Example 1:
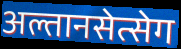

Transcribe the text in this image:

अल्तानसेत्सेग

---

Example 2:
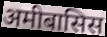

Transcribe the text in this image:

अमीबासिस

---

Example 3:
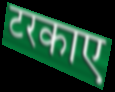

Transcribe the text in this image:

टरकाए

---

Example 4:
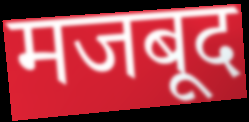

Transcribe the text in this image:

मजबूद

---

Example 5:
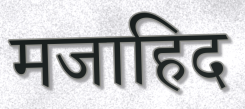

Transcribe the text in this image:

मजाहिद